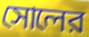
সোলের